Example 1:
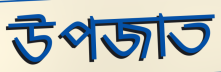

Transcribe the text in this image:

উপজাত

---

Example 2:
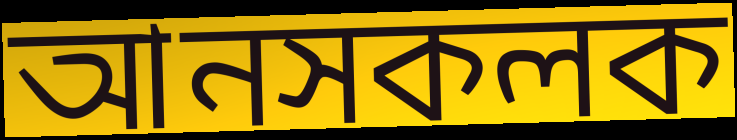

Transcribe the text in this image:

আনসকলক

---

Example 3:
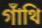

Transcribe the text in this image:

গাঁথি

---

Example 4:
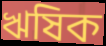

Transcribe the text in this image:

ঋষিক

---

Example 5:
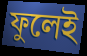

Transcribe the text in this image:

ফুলেই